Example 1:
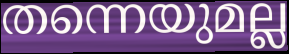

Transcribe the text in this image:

തന്നെയുമല്ല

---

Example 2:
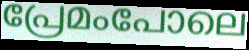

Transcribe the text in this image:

പ്രേമംപോലെ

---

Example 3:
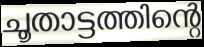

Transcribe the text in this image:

ചൂതാട്ടത്തിന്റെ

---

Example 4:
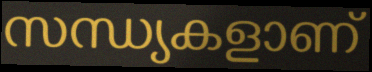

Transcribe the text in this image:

സന്ധ്യകളാണ്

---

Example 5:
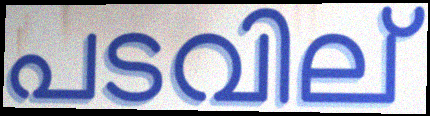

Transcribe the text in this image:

പടവില്